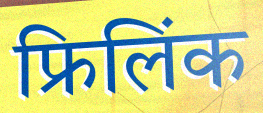
फ्रिलिंक